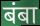
बंबा